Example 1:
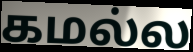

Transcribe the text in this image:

கமல்ல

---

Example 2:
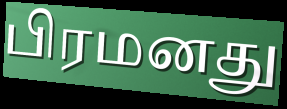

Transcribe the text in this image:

பிரமனது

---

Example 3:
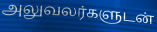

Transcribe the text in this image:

அலுவலர்களுடன்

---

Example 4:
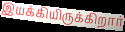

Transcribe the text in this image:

இயக்கியிருக்கிறார்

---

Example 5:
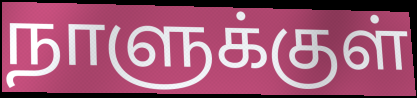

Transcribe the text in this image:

நாளுக்குள்